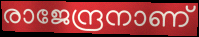
രാജേന്ദ്രനാണ്